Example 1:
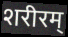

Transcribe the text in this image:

शरीरम्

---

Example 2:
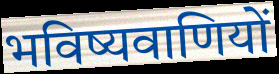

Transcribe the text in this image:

भविष्यवाणियों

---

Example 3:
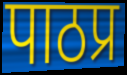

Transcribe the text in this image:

पाठप्र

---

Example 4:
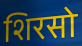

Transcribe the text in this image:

शिरसो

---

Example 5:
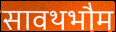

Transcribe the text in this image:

सावथभौम